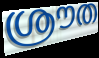
ശ്രൗത